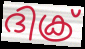
ദിക്ര്